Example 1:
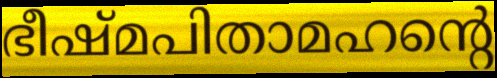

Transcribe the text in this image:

ഭീഷ്മപിതാമഹന്റെ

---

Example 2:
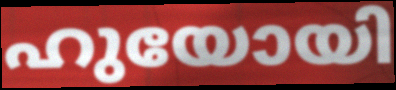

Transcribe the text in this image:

ഹുയോയി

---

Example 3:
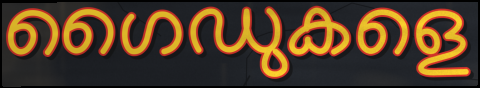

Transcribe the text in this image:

ഗൈഡുകളെ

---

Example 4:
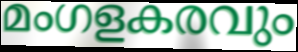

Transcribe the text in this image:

മംഗളകരവും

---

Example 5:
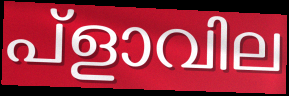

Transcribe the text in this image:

പ്ളാവില